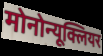
मोनोन्यूक्लियर